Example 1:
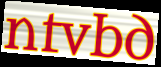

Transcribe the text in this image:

ntvbd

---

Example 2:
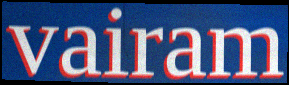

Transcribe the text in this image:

vairam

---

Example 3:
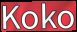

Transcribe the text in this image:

Koko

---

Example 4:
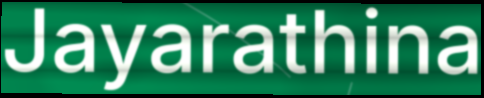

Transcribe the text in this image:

Jayarathina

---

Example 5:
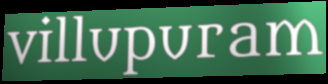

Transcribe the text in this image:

villupuram